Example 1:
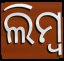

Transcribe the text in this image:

ଲିମ୍ବ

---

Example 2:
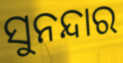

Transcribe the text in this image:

ସୁନନ୍ଦାର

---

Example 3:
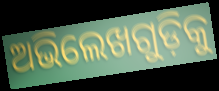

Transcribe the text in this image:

ଅଭିଲେଖଗୁଡ଼ିକୁ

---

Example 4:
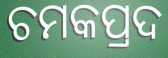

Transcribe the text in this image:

ଚମକପ୍ରଦ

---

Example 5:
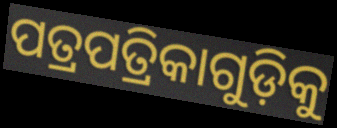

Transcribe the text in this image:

ପତ୍ରପତ୍ରିକାଗୁଡ଼ିକୁ